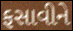
ફસાવીને